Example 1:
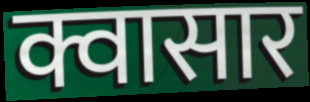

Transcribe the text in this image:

क्वासार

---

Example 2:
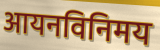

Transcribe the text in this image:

आयनविनिमय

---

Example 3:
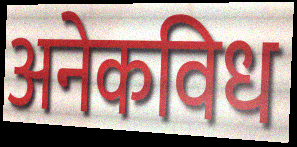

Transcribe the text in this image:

अनेकविध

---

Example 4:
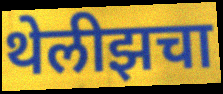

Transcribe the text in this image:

थेलीझचा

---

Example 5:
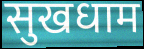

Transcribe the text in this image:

सुखधाम